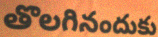
తొలగినందుకు